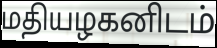
மதியழகனிடம்